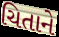
ચિતાને